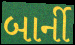
બાર્ની